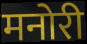
मनोरी